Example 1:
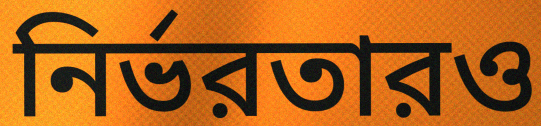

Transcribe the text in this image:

নির্ভরতারও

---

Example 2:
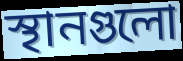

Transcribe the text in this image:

স্থানগুলো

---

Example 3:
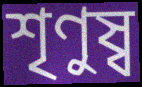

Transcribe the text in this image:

শৃণুষ্ব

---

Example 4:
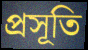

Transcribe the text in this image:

প্রসূতি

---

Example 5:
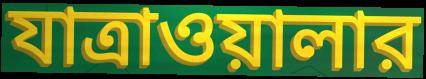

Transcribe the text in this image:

যাত্রাওয়ালার